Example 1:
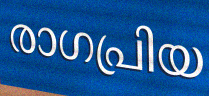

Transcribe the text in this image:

രാഗപ്രിയ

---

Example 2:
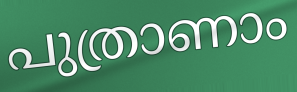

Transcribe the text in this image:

പുത്രാണാം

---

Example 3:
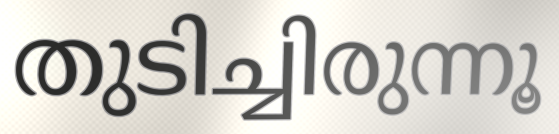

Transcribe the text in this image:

തുടിച്ചിരുന്നൂ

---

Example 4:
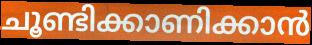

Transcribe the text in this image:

ചൂണ്ടിക്കാണിക്കാൻ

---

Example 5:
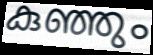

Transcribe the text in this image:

കുഞ്ഞും